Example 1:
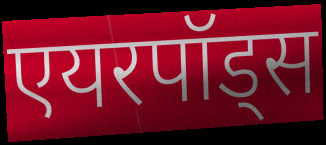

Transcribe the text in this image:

एयरपॉड्स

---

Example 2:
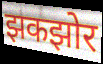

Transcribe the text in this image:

झकझोर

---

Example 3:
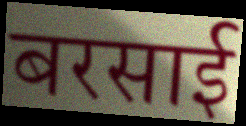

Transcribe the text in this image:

बरसाई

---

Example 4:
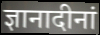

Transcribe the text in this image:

ज्ञानादीनां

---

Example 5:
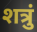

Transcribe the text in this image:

शत्रुं